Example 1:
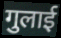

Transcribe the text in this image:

गुलाई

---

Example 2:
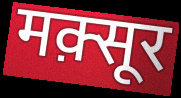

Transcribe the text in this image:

मक़्सूर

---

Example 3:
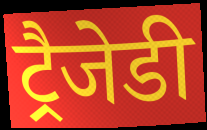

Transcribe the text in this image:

ट्रैजेडी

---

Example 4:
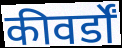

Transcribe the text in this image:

कीवर्डों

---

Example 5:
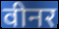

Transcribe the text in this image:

वीनर